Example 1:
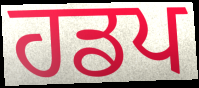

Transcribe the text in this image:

ਹਡਪ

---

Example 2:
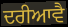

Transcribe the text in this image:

ਦਰੀਆਵੈ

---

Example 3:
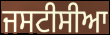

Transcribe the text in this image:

ਜਸਟੀਸੀਆ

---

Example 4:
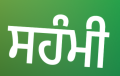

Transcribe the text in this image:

ਸਹੰਮੀ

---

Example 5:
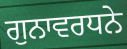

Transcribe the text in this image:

ਗੁਨਾਵਰਧਨੇ